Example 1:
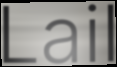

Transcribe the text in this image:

Lail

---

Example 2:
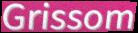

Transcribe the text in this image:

Grissom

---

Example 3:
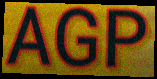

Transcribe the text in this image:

AGP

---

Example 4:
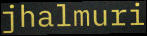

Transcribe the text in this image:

jhalmuri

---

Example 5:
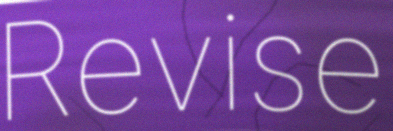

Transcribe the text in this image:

Revise